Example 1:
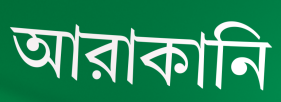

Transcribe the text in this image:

আরাকানি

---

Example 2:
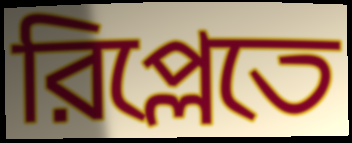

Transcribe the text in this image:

রিপ্লেতে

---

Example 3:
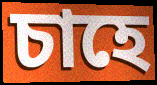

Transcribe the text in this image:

চাহে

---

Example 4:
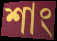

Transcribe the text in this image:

শাং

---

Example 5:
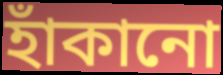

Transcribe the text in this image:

হাঁকানো